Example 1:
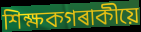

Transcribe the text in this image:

শিক্ষকগৰাকীয়ে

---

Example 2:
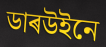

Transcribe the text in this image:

ডাৰউইনে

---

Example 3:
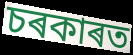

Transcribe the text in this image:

চৰকাৰত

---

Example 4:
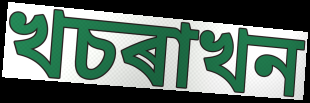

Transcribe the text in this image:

খচৰাখন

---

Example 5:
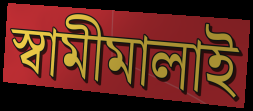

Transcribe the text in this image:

স্বামীমালাই